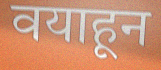
वयाहून